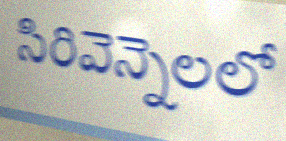
సిరివెన్నెలలో